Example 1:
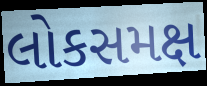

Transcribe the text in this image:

લોકસમક્ષ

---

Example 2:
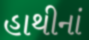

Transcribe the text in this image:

હાથીનાં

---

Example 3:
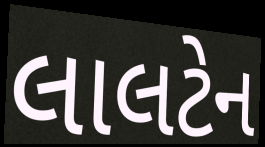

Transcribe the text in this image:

લાલટેન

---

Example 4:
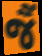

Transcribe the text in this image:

જૈં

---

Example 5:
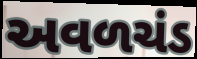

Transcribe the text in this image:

અવળચંડ